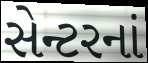
સેન્ટરનાં